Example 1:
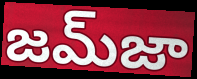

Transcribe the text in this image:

జమ్‌జా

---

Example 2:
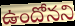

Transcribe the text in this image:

ఉందోనని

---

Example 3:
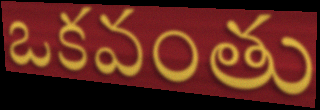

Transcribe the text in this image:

ఒకవంతు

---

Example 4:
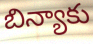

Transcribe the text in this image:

బిన్యాకు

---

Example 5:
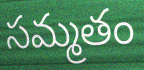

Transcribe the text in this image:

సమ్మతం